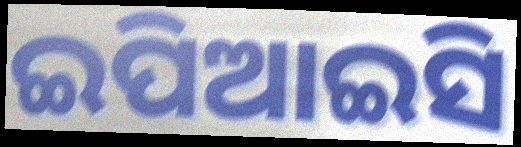
ଇପିଆଇସି